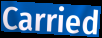
Carried